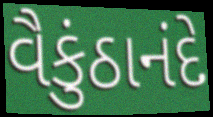
વૈકુંઠાનંદે